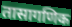
तासागणिक